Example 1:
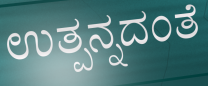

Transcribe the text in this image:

ಉತ್ಪನ್ನದಂತೆ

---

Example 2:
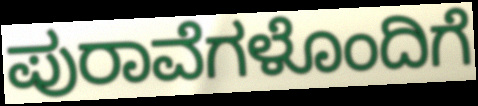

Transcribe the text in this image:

ಪುರಾವೆಗಳೊಂದಿಗೆ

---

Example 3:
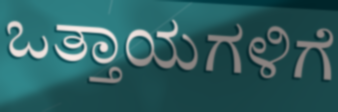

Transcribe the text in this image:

ಒತ್ತಾಯಗಳಿಗೆ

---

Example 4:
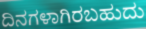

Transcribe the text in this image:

ದಿನಗಳಾಗಿರಬಹುದು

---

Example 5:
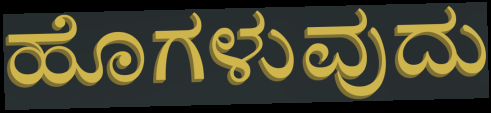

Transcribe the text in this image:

ಹೊಗಳುವುದು